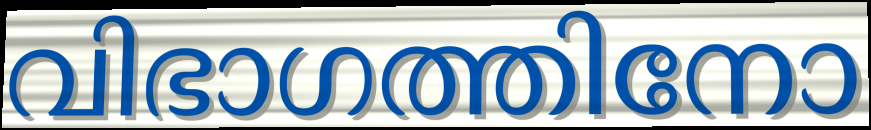
വിഭാഗത്തിനോ